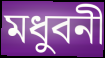
মধুবনী